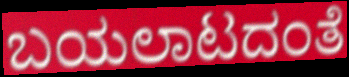
ಬಯಲಾಟದಂತೆ